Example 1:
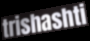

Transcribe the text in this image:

trishashti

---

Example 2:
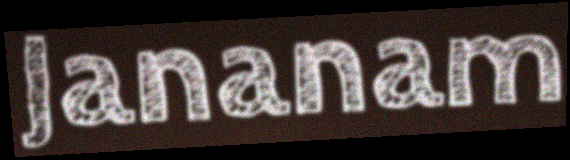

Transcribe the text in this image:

Jananam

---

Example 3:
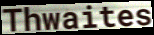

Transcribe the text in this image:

Thwaites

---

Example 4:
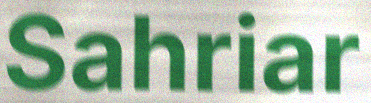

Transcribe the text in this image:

Sahriar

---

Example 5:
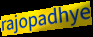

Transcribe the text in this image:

rajopadhye